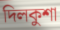
দিলকুশা